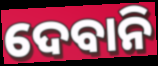
ଦେବାନି